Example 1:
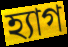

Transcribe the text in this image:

হ্যাগ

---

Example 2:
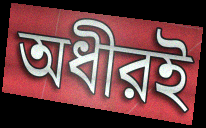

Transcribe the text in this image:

অধীরই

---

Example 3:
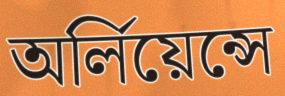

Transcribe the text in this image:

অর্লিয়েন্সে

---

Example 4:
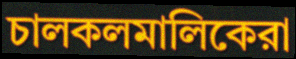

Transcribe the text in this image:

চালকলমালিকেরা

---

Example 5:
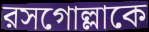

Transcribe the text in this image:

রসগোল্লাকে